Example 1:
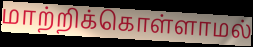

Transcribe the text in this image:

மாற்றிக்கொள்ளாமல்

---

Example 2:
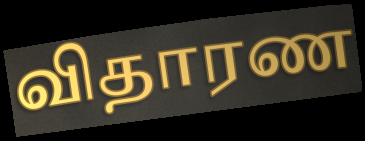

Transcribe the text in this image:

விதாரண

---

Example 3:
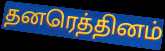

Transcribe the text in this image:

தனரெத்தினம்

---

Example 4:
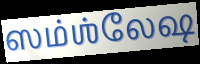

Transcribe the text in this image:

ஸம்ஶ்லேஷ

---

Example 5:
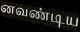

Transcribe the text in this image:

னவண்டிய